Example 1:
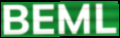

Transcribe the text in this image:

BEML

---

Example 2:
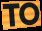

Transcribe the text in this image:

TO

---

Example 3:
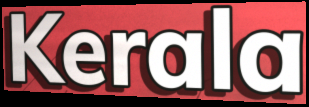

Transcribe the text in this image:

Kerala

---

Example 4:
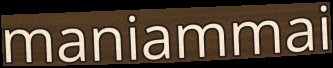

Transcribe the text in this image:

maniammai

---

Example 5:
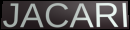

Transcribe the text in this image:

JACARI